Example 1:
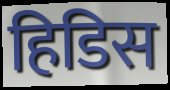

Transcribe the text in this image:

हिडिस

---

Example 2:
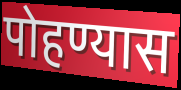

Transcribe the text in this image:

पोहण्यास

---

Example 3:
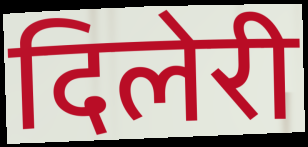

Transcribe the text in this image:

दिलेरी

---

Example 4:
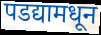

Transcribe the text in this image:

पडद्यामधून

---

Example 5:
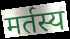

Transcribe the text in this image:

मर्तस्य